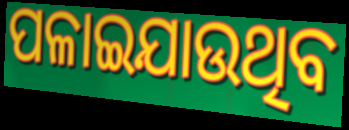
ପଳାଇଯାଉଥିବ